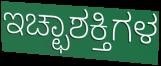
ಇಚ್ಛಾಶಕ್ತಿಗಳ